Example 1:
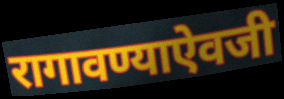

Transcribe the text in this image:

रागावण्याऐवजी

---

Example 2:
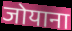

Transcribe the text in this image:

जोयाना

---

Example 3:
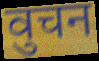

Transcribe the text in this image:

वुचन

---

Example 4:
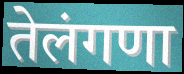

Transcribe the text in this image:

तेलंगणा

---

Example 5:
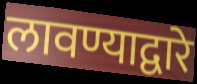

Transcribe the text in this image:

लावण्याद्वारे